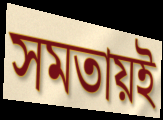
সমতায়ই